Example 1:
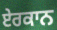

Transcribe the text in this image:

ਏਰਕਾਨ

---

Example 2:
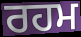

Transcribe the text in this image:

ਰਹਮ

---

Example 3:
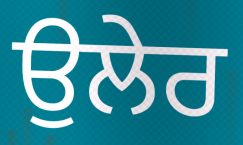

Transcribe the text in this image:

ਉਲੇਰ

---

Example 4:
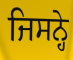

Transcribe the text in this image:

ਜਿਸਨ੍ਹੇ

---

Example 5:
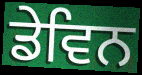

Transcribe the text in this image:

ਡੇਵਿਨ